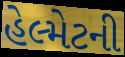
હેલ્મેટની